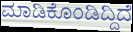
ಮಾಡಿಕೊಂಡಿದ್ದಿದೆ